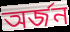
অর্জন